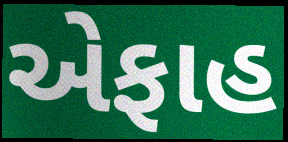
એફાહ